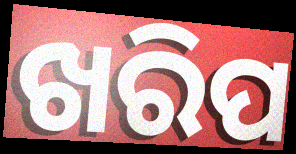
ଖରିପ